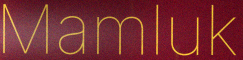
Mamluk